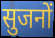
सुजनों